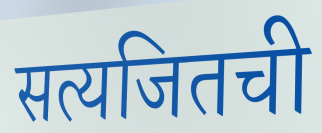
सत्यजितची